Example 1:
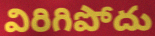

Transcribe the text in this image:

విరిగిపోదు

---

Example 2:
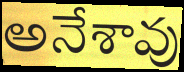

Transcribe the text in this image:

అనేశావు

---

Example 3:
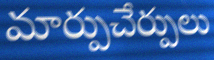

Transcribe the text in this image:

మార్పుచేర్పులు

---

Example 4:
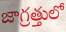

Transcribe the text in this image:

జాగ్రత్తులో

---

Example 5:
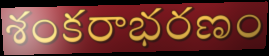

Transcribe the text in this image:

శంకరాభరణం